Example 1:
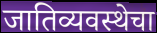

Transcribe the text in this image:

जातिव्यवस्थेचा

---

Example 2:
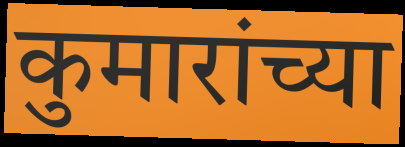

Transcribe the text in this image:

कुमारांच्या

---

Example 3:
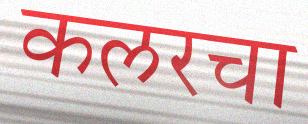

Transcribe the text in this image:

कलरचा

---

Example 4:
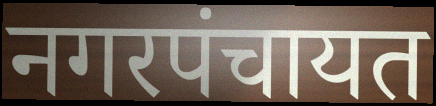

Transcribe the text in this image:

नगरपंचायत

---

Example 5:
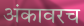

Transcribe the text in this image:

अंकावरच